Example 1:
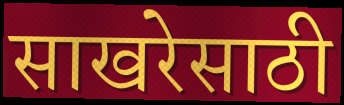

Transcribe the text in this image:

साखरेसाठी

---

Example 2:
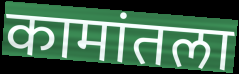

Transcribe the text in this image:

कामांतला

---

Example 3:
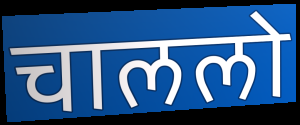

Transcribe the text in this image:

चाललो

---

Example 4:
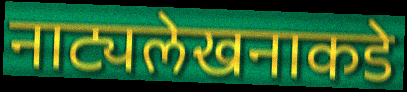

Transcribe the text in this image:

नाट्यलेखनाकडे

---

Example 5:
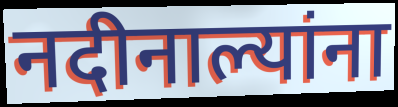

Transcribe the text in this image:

नदीनाल्यांना